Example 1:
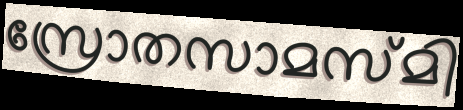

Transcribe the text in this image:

സ്രോതസാമസ്മി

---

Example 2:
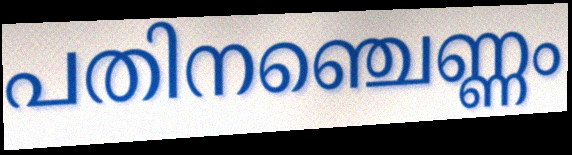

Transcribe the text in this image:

പതിനഞ്ചെണ്ണം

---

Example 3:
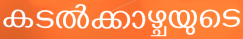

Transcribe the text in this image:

കടൽക്കാഴ്ചയുടെ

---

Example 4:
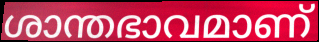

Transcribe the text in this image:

ശാന്തഭാവമാണ്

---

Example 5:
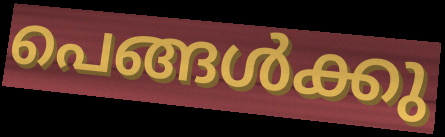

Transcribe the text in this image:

പെങ്ങൾക്കു